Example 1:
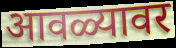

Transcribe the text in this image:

आवळ्यावर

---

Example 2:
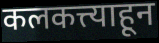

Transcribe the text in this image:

कलकत्त्याहून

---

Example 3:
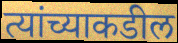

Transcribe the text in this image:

त्यांच्याकडील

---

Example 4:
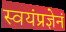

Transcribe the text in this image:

स्वयंप्रज्ञेनं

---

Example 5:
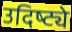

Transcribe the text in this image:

उदिष्ट्ये